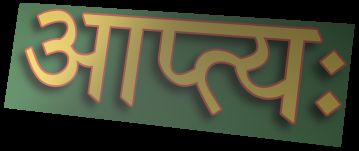
आप्त्यः